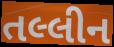
તલ્લીન